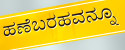
ಹಣೆಬರಹವನ್ನೂ